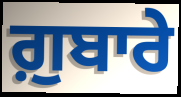
ਗ਼ੁਬਾਰੇ